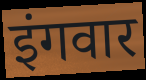
इंगवार